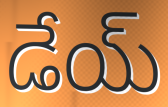
డేయ్